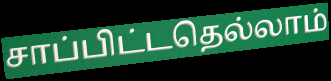
சாப்பிட்டதெல்லாம்